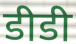
डीडी